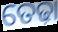
ତେଢ଼ା